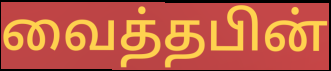
வைத்தபின்